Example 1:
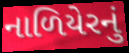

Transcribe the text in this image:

નાળિયેરનું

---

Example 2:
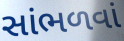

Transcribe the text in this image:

સાંભળવાં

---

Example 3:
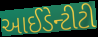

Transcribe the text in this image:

આઈડેન્ટીટી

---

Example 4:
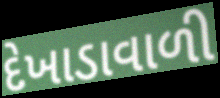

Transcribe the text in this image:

દેખાડાવાળી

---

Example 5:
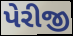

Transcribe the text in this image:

પેરીજી